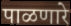
पाळणारे